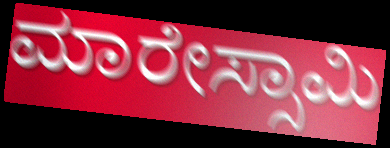
ಮಾರೇಸ್ಸಾಮಿ